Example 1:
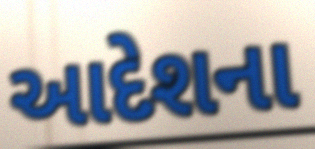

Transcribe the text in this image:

આદેશના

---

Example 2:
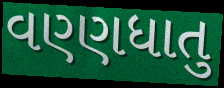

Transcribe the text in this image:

વણ્ણધાતુ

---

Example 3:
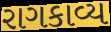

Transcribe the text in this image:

રાગકાવ્ય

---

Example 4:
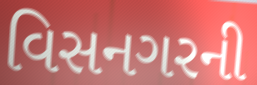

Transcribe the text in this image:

વિસનગરની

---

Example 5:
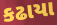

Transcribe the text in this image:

કઢાયા